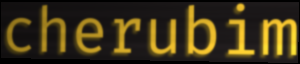
cherubim